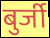
बुर्जी